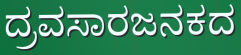
ದ್ರವಸಾರಜನಕದ